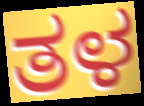
ತಳ